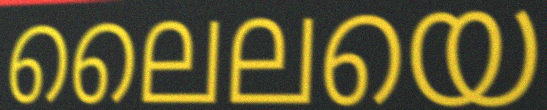
ലൈലയെ